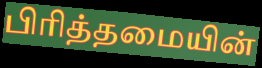
பிரித்தமையின்